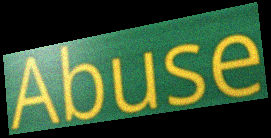
Abuse